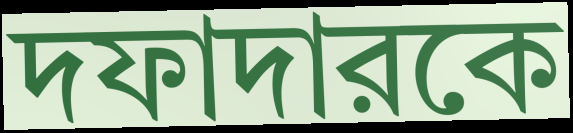
দফাদারকে